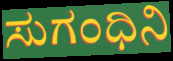
ಸುಗಂಧಿನಿ